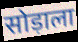
सोड़ाला